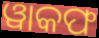
ୱାକଫ